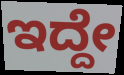
ಇದ್ದೇ